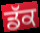
ਡੱਕ